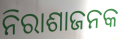
ନିରାଶାଜନକ